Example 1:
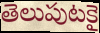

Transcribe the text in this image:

తెలుపుటకై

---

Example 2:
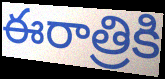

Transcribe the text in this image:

ఈరాత్రికి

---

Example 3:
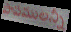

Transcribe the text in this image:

పాపములన్నీ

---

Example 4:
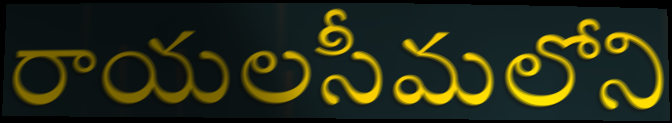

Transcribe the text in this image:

రాయలసీమలోని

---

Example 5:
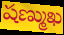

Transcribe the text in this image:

షణ్ముఖ